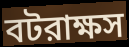
বটরাক্ষস